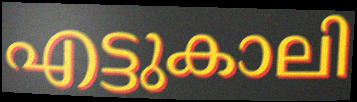
എട്ടുകാലി